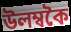
উলম্বকৈ